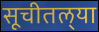
सूचीतल्या